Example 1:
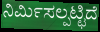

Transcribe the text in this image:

ನಿರ್ಮಿಸಲ್ಪಟ್ಟಿದೆ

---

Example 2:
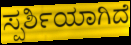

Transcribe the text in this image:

ಸ್ಪರ್ಶಿಯಾಗಿದೆ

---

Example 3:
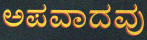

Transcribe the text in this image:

ಅಪವಾದವು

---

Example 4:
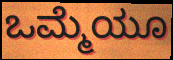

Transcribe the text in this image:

ಒಮ್ಮೆಯೂ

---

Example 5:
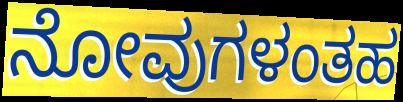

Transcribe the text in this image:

ನೋವುಗಳಂತಹ